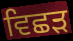
ਵਿਛਡ਼